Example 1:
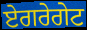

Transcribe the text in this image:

ਏਗਰੇਗੇਟ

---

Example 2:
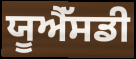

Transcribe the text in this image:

ਯੂਐੱਸਡੀ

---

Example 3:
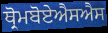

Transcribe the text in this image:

ਥ੍ਰੋਮਬੋਏਐਸਐਸ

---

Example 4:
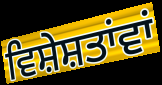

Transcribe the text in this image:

ਵਿਸ਼ੇਸ਼ਤਾਂਵਾਂ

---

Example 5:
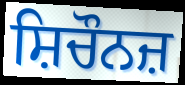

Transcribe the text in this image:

ਸ਼ਿਚੌਨਜ਼